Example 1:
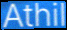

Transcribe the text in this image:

Athil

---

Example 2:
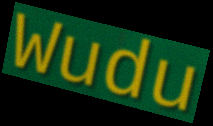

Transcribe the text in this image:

Wudu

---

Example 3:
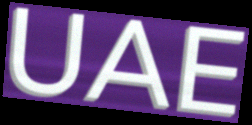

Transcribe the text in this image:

UAE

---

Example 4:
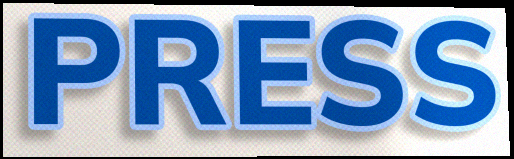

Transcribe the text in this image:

PRESS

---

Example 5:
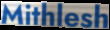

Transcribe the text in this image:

Mithlesh